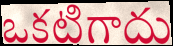
ఒకటిగాదు